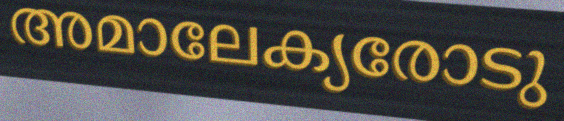
അമാലേക്യരോടു